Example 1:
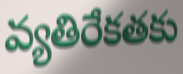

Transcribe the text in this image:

వ్యతిరేకతకు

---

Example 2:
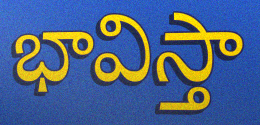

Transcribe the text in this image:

భావిస్తా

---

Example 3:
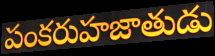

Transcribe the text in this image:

పంకరుహజాతుడు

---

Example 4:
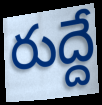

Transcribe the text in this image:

రుద్దే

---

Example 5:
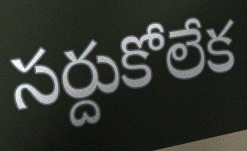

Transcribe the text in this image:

సర్దుకోలేక